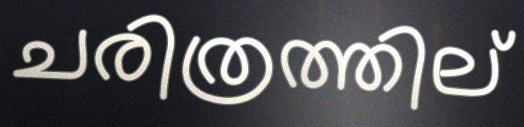
ചരിത്രത്തില്